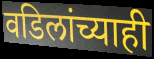
वडिलांच्याही